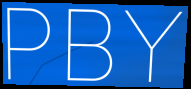
PBY